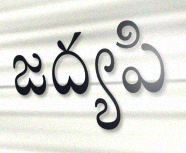
జద్యపి